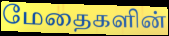
மேதைகளின்